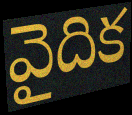
వైదిక